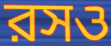
রসও